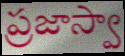
ప్రజాస్వా